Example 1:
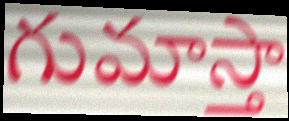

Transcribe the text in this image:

గుమాస్తా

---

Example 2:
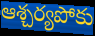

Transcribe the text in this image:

ఆశ్చర్యపోకు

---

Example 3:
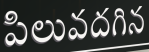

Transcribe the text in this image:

పిలువదగిన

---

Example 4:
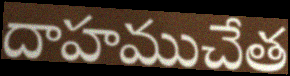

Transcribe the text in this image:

దాహముచేత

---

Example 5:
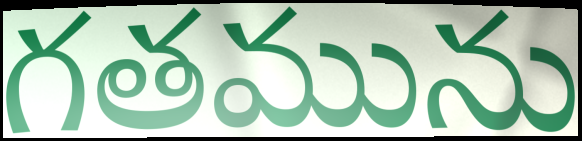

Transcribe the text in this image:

గతమును